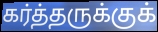
கர்த்தருக்குக்